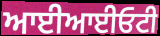
ਆਈਆਈਓਟੀ